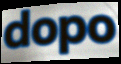
dopo